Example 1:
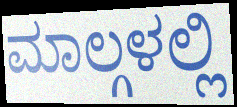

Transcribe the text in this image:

ಮಾಲ್ಗಳಲ್ಲಿ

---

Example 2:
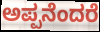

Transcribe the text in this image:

ಅಪ್ಪನೆಂದರೆ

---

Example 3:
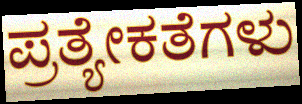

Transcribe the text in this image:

ಪ್ರತ್ಯೇಕತೆಗಳು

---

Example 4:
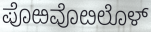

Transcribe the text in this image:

ಪೊಱವೊೞಲೊಳ್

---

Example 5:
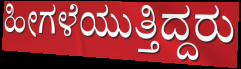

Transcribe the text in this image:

ಹೀಗಳೆಯುತ್ತಿದ್ದರು